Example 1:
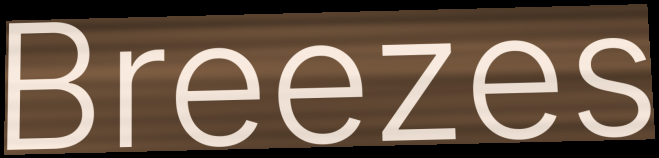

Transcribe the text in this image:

Breezes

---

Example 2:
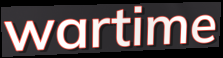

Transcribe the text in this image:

wartime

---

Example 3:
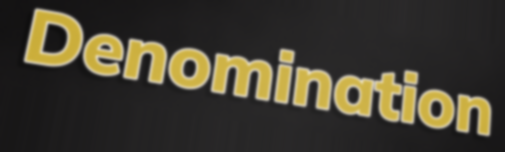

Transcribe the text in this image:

Denomination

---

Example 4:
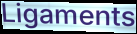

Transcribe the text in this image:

Ligaments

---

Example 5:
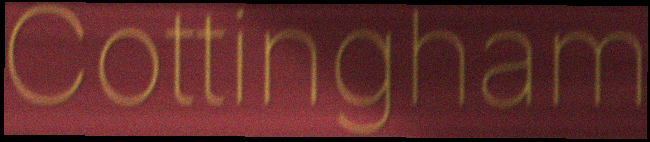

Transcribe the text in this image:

Cottingham